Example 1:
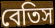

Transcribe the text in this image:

বেতিস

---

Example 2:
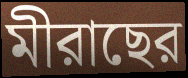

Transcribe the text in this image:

মীরাছের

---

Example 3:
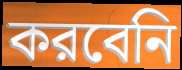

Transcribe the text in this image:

করবেনি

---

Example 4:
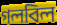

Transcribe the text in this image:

গলবিল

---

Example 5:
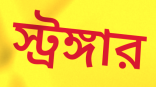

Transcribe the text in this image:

স্ট্রঙ্গার